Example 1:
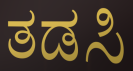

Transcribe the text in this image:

ತಡಸಿ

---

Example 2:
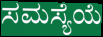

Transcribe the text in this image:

ಸಮಸ್ಯೆಯೆ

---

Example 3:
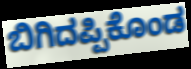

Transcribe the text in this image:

ಬಿಗಿದಪ್ಪಿಕೊಂಡ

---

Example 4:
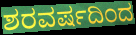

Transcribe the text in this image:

ಶರವರ್ಷದಿಂದ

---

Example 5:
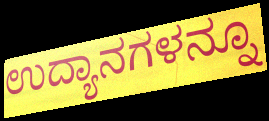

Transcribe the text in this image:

ಉದ್ಯಾನಗಳನ್ನೂ